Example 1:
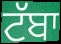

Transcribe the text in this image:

ਟੱਬਾ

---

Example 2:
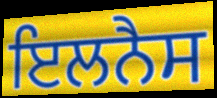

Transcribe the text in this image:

ਇਲਨੈਸ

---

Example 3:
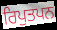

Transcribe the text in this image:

ਰਿਪੁਤਪਨ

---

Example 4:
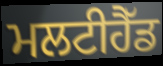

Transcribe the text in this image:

ਮਲਟੀਹੈੱਡ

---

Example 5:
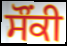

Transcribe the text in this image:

ਸੌਂਕੀ